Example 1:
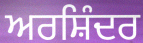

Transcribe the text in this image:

ਅਰਸ਼ਿੰਦਰ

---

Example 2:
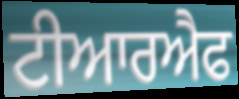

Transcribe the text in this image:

ਟੀਆਰਐਫ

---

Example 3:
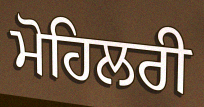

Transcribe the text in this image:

ਮੋਹਿਲਰੀ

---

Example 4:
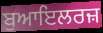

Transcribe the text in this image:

ਬੁਆਇਲਰਜ਼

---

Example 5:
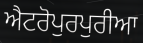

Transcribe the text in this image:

ਐਟਰੋਪੁਰਪੁਰੀਆ